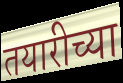
तयारीच्या